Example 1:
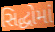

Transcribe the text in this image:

સિદ્ધોમાં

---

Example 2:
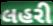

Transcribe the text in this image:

લહરી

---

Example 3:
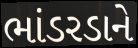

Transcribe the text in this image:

ભાંડરડાને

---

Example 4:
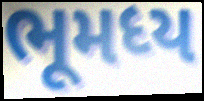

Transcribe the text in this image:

ભૂમધ્ય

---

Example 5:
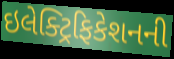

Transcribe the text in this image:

ઇલેક્ટ્રિફિકેશનની